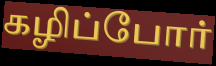
கழிப்போர்